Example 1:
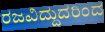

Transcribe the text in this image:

ರಜವಿದ್ದುದರಿಂದ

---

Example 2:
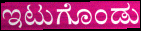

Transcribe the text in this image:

ಇಟುಗೊಂಡು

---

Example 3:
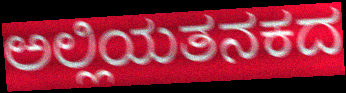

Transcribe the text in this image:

ಅಲ್ಲಿಯತನಕದ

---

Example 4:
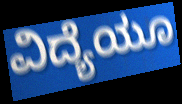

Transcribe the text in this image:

ವಿದ್ಯೆಯೂ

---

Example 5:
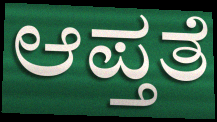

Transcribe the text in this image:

ಆಪ್ತತೆ